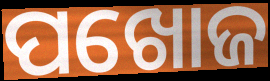
ପଖୋଜ